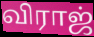
விராஜ்